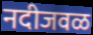
नदीजवळ